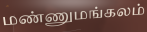
மண்ணுமங்கலம்